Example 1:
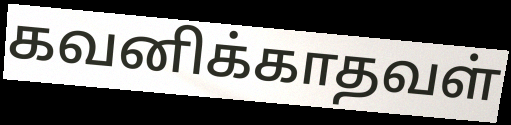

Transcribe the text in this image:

கவனிக்காதவள்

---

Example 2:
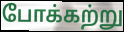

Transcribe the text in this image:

போக்கற்று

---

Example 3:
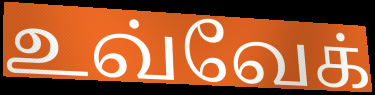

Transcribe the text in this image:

உவ்வேக்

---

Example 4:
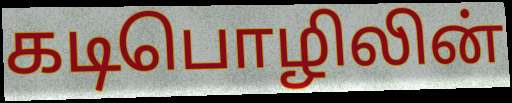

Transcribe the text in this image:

கடிபொழிலின்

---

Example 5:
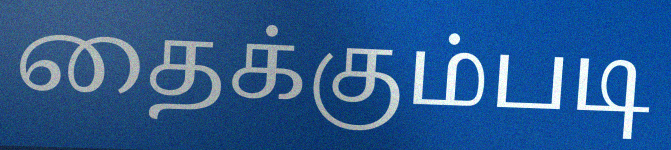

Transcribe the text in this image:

தைக்கும்படி